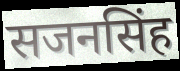
सजनसिंह